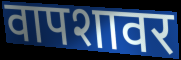
वापशावर